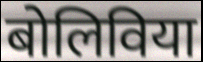
बोलिविया